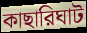
কাছারিঘাট